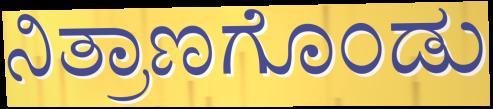
ನಿತ್ರಾಣಗೊಂಡು